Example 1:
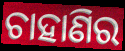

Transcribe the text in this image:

ଚାହାଣିର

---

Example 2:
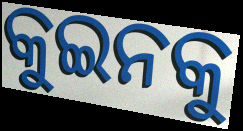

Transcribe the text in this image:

କୁଇନକୁ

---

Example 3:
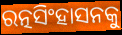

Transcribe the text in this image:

ରତ୍ନସିଂହାସନକୁ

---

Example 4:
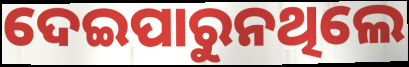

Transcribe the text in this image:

ଦେଇପାରୁନଥିଲେ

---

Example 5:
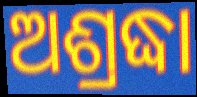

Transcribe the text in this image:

ଅଶ୍ରଦ୍ଧା